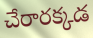
చేరారక్కడ